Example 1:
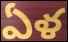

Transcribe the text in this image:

ఏళ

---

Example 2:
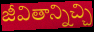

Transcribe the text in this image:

జీవితాన్నిచ్చి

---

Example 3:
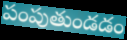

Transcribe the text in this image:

పంపుతుండడం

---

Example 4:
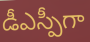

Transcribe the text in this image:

డీఎస్పీగా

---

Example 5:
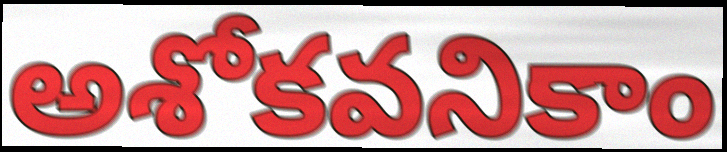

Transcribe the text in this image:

అశోకవనికాం